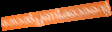
തോൽപ്പണിക്കാരന്റെ